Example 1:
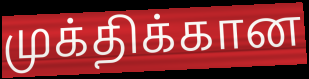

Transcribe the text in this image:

முக்திக்கான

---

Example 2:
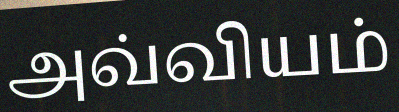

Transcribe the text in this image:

அவ்வியம்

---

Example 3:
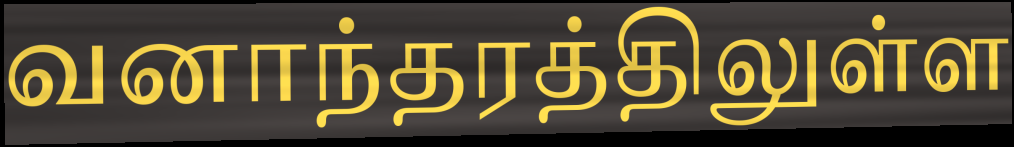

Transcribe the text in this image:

வனாந்தரத்திலுள்ள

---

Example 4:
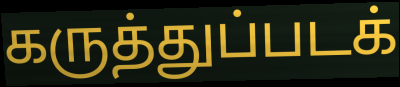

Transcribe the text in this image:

கருத்துப்படக்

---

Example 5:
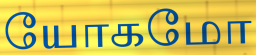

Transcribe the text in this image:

யோகமோ